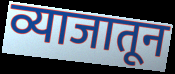
व्याजातून